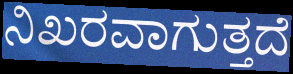
ನಿಖರವಾಗುತ್ತದೆ